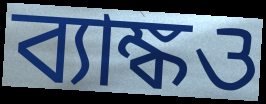
ব্যাঙ্কও